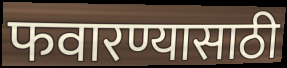
फवारण्यासाठी